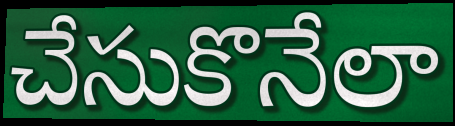
చేసుకొనేలా